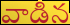
వాడిన